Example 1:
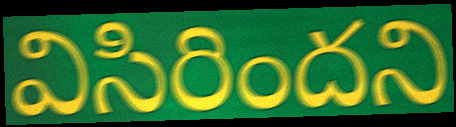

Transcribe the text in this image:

విసిరిందని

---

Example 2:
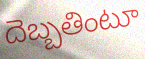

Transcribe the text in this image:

దెబ్బతింటూ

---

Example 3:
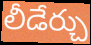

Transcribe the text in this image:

లీడేర్చు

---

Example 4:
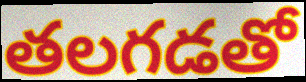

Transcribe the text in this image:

తలగడతో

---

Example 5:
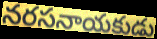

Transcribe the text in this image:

నరసనాయకుడు